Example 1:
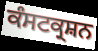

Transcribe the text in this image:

ਕੰਸਟਕ੍ਰਸ਼ਨ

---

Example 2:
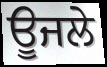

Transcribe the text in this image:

ਊਜਲੇ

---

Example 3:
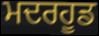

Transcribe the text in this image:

ਮਦਰਹੂਡ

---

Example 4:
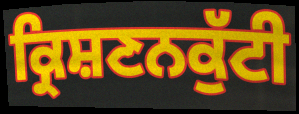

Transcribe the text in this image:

ਕ੍ਰਿਸ਼ਣਨਕੁੱਟੀ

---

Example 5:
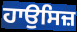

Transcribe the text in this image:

ਹਾਉਸਿਜ਼